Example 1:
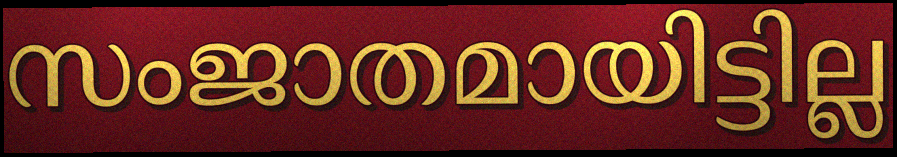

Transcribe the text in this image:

സംജാതമായിട്ടില്ല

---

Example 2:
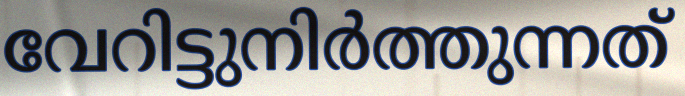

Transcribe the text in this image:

വേറിട്ടുനിർത്തുന്നത്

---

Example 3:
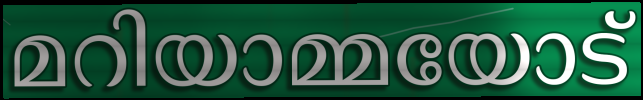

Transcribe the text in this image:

മറിയാമ്മയോട്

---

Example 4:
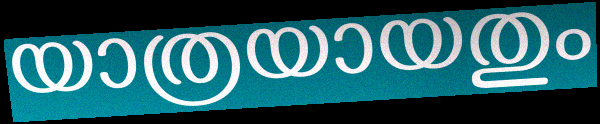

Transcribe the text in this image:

യാത്രയായതും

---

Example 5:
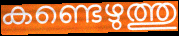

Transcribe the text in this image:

കണ്ടെഴുത്തു